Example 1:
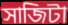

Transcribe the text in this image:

সাজিটা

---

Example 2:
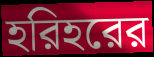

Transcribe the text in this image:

হরিহরের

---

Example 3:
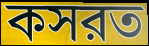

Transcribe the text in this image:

কসরত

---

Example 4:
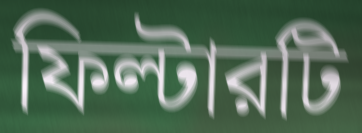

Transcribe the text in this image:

ফিল্টারটি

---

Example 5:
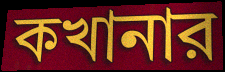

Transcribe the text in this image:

কখানার